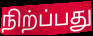
நிற்ப்பது